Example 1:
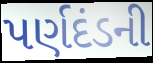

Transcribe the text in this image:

પર્ણદંડની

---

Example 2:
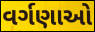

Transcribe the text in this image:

વર્ગણાઓ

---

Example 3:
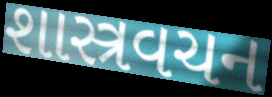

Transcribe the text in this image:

શાસ્ત્રવચન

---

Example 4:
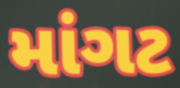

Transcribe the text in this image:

માંગટ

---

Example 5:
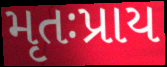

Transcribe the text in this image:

મૃતઃપ્રાય